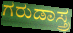
ಗರುಡಾಸ್ತ್ರ